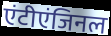
एंटीएंजिनल